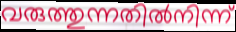
വരുത്തുന്നതിൽനിന്ന്